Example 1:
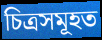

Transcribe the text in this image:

চিত্ৰসমূহত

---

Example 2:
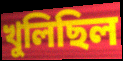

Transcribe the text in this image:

খুলিছিল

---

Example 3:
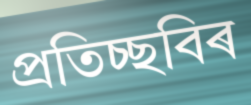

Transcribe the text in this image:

প্ৰতিচ্ছবিৰ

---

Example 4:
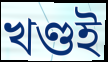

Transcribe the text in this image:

খণ্ডই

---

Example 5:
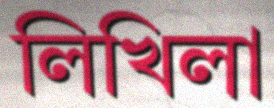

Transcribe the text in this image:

লিখিলা